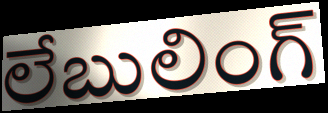
లేబులింగ్